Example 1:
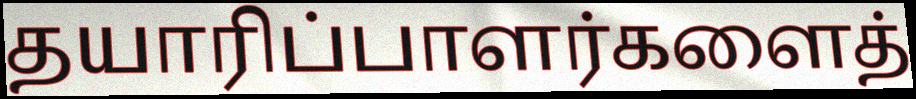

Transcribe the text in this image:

தயாரிப்பாளர்களைத்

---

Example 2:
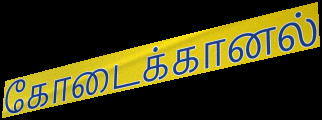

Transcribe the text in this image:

கோடைக்கானல்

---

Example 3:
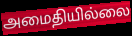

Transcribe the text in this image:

அமைதியில்லை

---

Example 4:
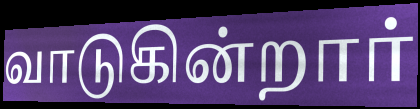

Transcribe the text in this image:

வாடுகின்றார்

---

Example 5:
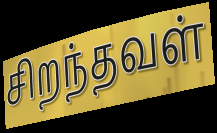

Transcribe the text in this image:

சிறந்தவள்